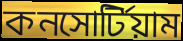
কনসোর্টিয়াম